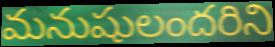
మనుషులందరిని